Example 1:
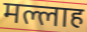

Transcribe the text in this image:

मल्‍लाह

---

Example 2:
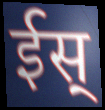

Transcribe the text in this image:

ईस्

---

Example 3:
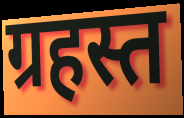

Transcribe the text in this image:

ग्रहस्त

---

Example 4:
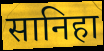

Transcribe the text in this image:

सानिहा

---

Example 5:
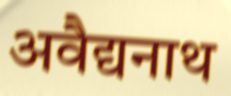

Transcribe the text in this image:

अवैद्यनाथ